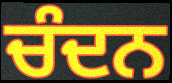
ਚੰਦਨ